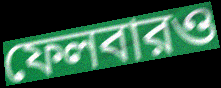
ফেলবারও